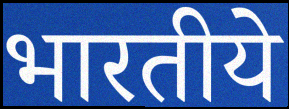
भारतीये